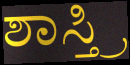
ಶಾಸ್ತ್ರಿ